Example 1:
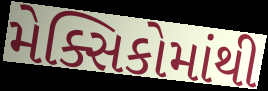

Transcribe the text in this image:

મેક્સિકોમાંથી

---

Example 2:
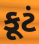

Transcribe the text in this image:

કૂટં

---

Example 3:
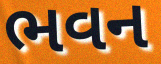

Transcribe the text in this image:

ભવન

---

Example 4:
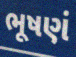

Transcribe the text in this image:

ભૂષણં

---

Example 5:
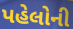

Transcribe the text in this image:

પહેલોની